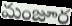
మంజూర